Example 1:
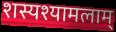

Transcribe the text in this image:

शस्यश्यामलाम्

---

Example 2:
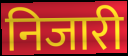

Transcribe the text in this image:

निजारी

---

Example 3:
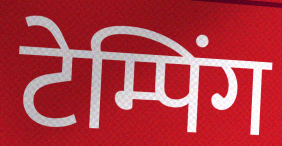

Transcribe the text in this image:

टेम्पिंग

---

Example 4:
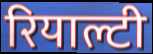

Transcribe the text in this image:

रियाल्टी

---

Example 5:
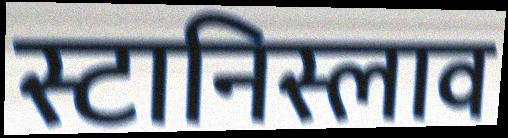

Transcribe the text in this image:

स्टानिस्लाव